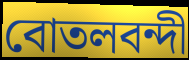
বোতলবন্দী